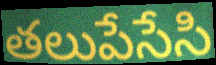
తలుపేసేసి